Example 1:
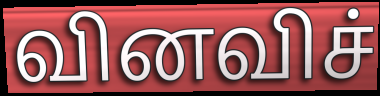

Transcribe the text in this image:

வினவிச்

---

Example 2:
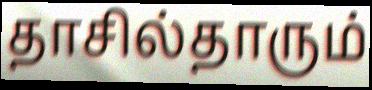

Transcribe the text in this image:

தாசில்தாரும்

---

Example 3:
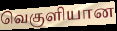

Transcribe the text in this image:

வெகுளியான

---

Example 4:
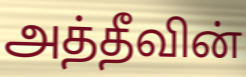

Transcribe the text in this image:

அத்தீவின்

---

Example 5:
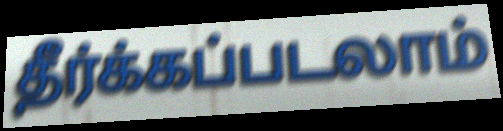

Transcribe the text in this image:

தீர்க்கப்படலாம்